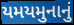
યમયમુનાનું